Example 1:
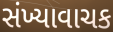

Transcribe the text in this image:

સંખ્યાવાચક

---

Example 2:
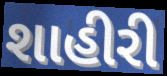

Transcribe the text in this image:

શાહીરી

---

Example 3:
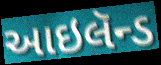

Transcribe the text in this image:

આઇલૅન્ડ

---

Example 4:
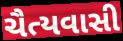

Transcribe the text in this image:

ચૈત્યવાસી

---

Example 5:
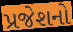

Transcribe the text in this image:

પ્રજેશનો